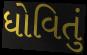
ધોવિતું